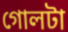
গোলটা